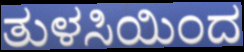
ತುಳಸಿಯಿಂದ